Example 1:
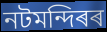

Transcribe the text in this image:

নটমন্দিৰৰ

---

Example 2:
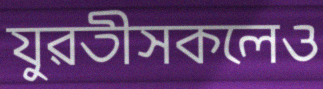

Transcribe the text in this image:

যুৱতীসকলেও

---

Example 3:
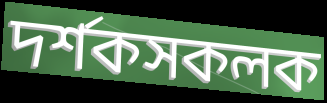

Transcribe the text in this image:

দৰ্শকসকলক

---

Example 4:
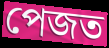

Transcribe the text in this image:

পেজত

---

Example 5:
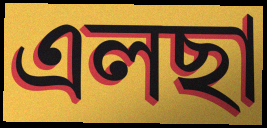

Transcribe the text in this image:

এলছা